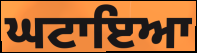
ਘਟਾਇਆ